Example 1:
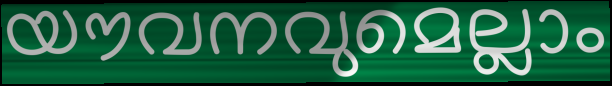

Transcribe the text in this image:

യൗവനവുമെല്ലാം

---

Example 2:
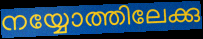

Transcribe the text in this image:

നയ്യോത്തിലേക്കു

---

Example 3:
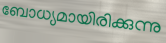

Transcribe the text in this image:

ബോധ്യമായിരിക്കുന്നു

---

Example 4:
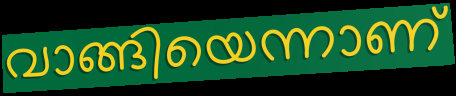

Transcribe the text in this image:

വാങ്ങിയെന്നാണ്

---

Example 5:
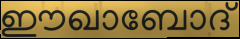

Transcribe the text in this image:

ഈഖാബോദ്